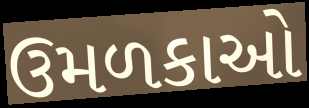
ઉમળકાઓ